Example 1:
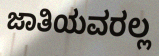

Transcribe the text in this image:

ಜಾತಿಯವರಲ್ಲ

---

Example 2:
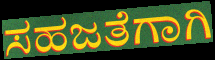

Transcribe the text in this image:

ಸಹಜತೆಗಾಗಿ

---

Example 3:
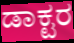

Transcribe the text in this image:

ಡಾಕ್ಟರ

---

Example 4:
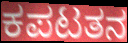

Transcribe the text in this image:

ಕಪಟತನ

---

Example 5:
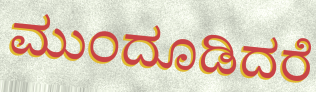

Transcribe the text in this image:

ಮುಂದೂಡಿದರೆ